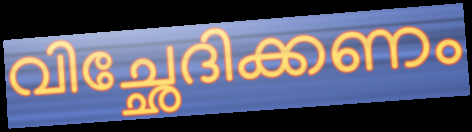
വിച്ഛേദിക്കണം